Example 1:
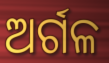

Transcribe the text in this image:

ଅର୍ଗଳ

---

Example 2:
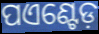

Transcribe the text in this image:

ପଏଣ୍ଟେଡ଼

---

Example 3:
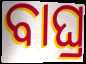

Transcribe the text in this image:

ବାଘ୍ର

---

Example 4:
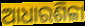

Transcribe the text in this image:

ଆଧାରଶିଳା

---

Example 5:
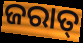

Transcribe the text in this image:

ଜରାତ୍